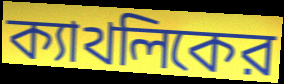
ক্যাথলিকের